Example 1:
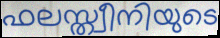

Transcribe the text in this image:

ഫലസ്ത്വീനിയുടെ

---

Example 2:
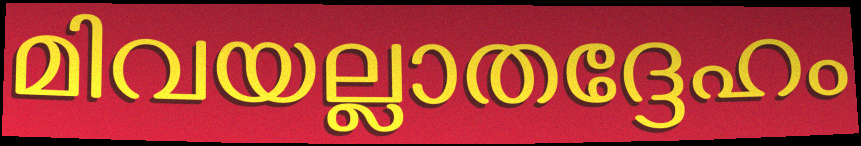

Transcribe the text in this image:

മിവയല്ലാതദ്ദേഹം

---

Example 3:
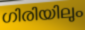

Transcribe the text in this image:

ഗിരിയിലും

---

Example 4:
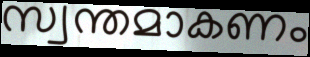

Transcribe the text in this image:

സ്വന്തമാകണം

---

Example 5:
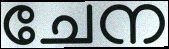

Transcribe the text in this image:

ചേന